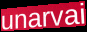
unarvai